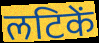
लटिकें